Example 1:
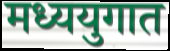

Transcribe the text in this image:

मध्ययुगात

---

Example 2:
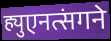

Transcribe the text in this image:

ह्युएनत्संगने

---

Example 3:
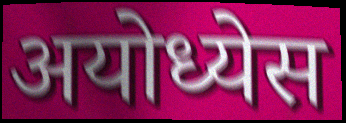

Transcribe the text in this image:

अयोध्येस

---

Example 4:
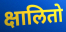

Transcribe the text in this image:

क्षालितो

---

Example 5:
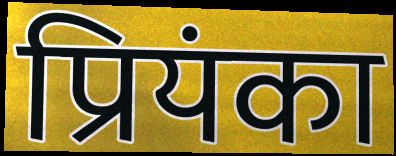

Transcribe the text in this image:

प्रियंका